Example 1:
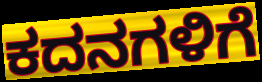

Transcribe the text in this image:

ಕದನಗಳಿಗೆ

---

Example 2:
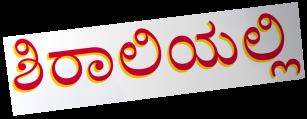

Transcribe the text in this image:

ಶಿರಾಲಿಯಲ್ಲಿ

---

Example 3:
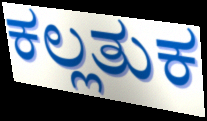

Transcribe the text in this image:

ಕಲ್ಲತುಕ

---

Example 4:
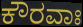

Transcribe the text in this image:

ಕೌರವಾಃ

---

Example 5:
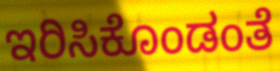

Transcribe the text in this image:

ಇರಿಸಿಕೊಂಡಂತೆ